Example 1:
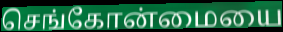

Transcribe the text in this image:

செங்கோன்மையை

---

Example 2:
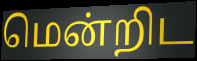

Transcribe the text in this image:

மென்றிட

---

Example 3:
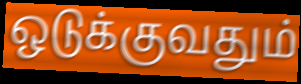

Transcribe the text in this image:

ஒடுக்குவதும்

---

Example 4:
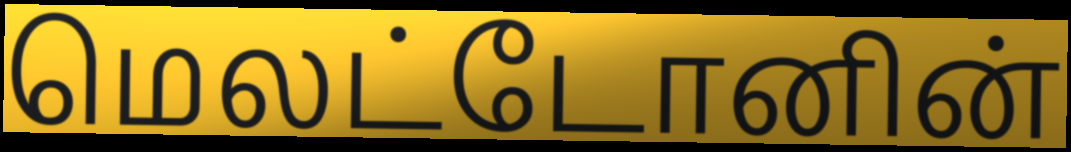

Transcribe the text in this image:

மெலட்டோனின்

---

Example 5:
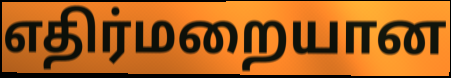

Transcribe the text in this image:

எதிர்மறையான